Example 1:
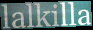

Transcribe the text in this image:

lalkilla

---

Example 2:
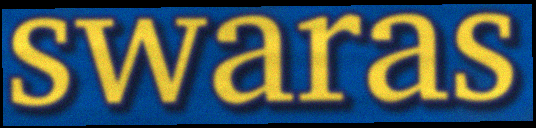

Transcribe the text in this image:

swaras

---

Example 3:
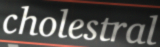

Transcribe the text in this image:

cholestral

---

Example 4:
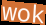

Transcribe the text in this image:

wok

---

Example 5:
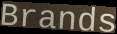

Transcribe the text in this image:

Brands